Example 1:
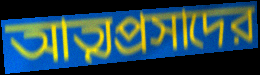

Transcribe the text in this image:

আত্মপ্রসাদের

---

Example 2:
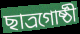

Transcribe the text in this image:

ছাত্রগোষ্ঠী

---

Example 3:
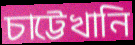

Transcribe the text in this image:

চাট্টেখানি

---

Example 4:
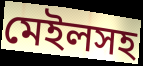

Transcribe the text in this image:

মেইলসহ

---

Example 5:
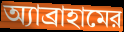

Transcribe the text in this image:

অ্যাব্রাহামের